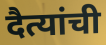
दैत्यांची